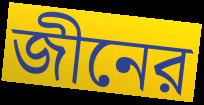
জীনের